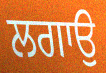
ਲਗਾਉੁ